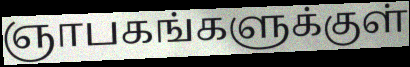
ஞாபகங்களுக்குள்